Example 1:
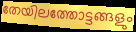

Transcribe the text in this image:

തേയിലത്തോട്ടങ്ങളും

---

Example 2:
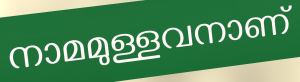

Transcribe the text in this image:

നാമമുള്ളവനാണ്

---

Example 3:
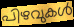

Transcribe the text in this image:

പിഴവുകൾ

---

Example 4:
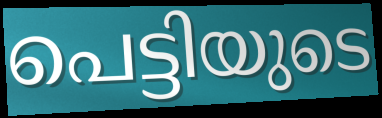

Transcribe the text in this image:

പെട്ടിയുടെ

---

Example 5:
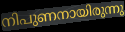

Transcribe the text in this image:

നിപുണനായിരുന്നു